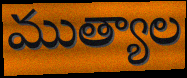
ముత్యాల